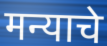
मन्याचे